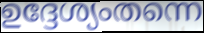
ഉദ്ദേശ്യംതന്നെ